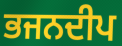
ਭਜਨਦੀਪ